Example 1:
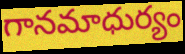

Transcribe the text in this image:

గానమాధుర్యం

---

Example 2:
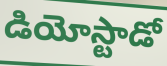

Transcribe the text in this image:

డియోస్టాడో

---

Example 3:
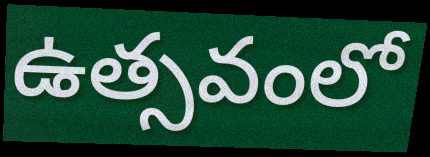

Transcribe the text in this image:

ఉత్సవంలో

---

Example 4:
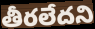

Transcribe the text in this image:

తీరలేదని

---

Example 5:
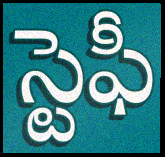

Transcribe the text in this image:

స్టెఫీ